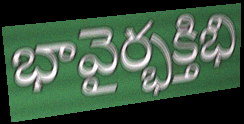
భావైర్భక్తిభి